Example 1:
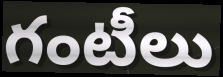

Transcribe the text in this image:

గంటీలు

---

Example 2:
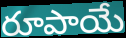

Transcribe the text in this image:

రూపాయే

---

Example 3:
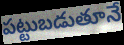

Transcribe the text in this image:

పట్టుబడుతూనే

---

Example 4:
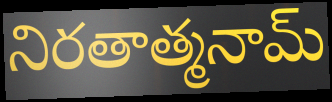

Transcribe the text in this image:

నిరతాత్మనామ్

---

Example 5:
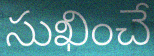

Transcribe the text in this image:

సుఖించే